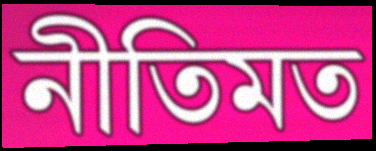
নীতিমত